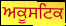
ਅਕੂਸਟਿਕ